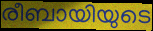
രീബായിയുടെ